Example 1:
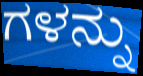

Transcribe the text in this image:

ಗಳನ್ನು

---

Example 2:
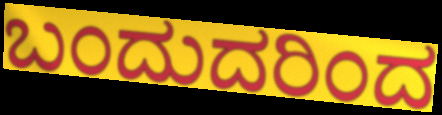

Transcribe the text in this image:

ಬಂದುದರಿಂದ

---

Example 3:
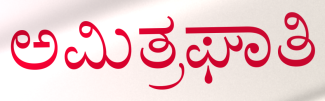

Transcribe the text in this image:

ಅಮಿತ್ರಘಾತಿ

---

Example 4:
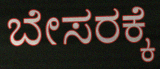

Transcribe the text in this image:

ಬೇಸರಕ್ಕೆ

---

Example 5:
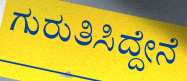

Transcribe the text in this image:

ಗುರುತಿಸಿದ್ದೇನೆ